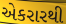
એકરારથી